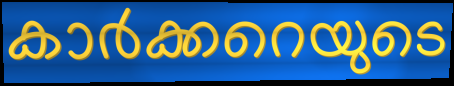
കാർക്കറെയുടെ